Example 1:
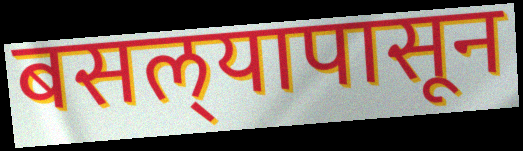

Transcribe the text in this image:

बसल्यापासून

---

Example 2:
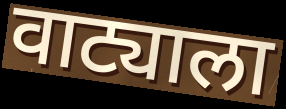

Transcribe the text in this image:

वाट्याला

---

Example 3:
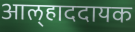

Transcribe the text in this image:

आल्हाददायक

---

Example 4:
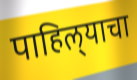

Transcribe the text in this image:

पाहिल्याचा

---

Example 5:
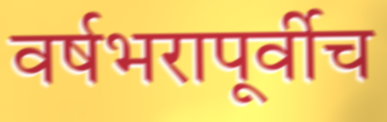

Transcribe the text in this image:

वर्षभरापूर्वीच